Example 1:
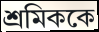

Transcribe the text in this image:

শ্রমিককে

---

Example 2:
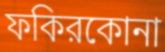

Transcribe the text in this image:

ফকিরকোনা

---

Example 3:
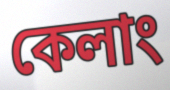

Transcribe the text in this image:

কেলাং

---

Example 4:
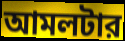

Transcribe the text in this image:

আমলটার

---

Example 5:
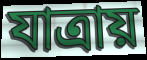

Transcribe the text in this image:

যাত্রায়